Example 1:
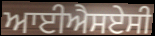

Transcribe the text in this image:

ਆਈਐਸਏਸੀ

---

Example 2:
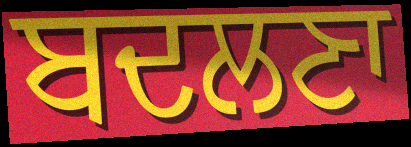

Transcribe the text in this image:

ਬਦਲਣਾ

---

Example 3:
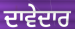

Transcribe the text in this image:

ਦਾਵੇਦਾਰ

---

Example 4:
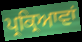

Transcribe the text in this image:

ਪ੍ਰਕ੍ਰਿਆਵਾਂ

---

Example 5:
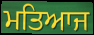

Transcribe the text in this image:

ਮਤਿਆਜ